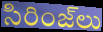
సిరింజ్‌లు